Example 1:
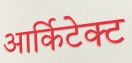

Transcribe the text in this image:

आर्किटेक्ट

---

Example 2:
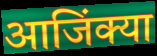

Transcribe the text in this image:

आजिंक्या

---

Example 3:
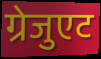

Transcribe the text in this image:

ग्रेजुएट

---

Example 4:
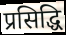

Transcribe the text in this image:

प्रसिद्धि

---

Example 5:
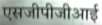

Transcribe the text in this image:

एसजीपीजीआई